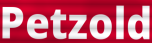
Petzold